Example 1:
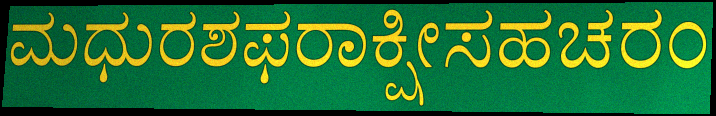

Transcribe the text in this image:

ಮಧುರಶಫರಾಕ್ಷೀಸಹಚರಂ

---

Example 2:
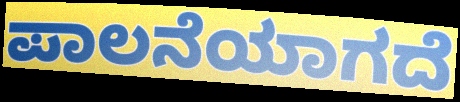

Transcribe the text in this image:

ಪಾಲನೆಯಾಗದೆ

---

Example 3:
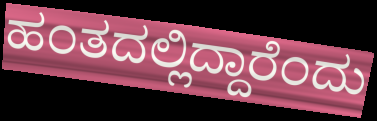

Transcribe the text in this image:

ಹಂತದಲ್ಲಿದ್ದಾರೆಂದು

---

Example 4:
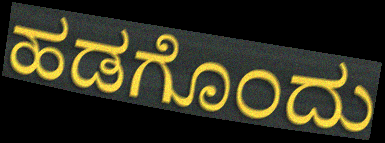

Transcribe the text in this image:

ಹಡಗೊಂದು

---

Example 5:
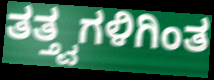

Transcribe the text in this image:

ತತ್ತ್ವಗಳಿಗಿಂತ